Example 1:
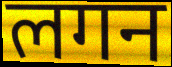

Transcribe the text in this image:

लगन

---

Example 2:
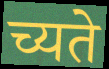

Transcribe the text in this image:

च्यते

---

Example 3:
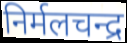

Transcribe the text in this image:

निर्मलचन्द्र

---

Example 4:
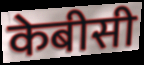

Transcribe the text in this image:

केबीसी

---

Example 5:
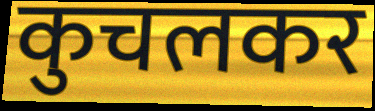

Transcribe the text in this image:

कुचलकर